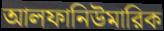
আলফানিউমারিক